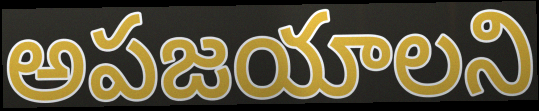
అపజయాలని